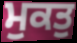
ਮੁਕਤੁ